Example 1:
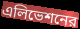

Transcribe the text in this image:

এলিভেশনের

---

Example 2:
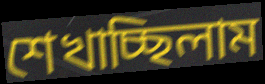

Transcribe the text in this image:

শেখাচ্ছিলাম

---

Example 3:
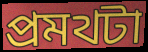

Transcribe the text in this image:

প্রমথটা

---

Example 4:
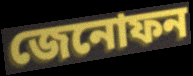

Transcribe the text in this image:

জেনোফন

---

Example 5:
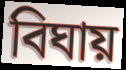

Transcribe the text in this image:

বিঘায়